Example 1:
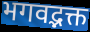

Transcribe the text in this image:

भगवद्भक्त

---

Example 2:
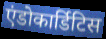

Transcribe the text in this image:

एंडोकार्डिटिस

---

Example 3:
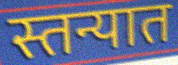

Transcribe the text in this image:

स्तन्यात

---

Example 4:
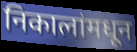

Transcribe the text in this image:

निकालांमधून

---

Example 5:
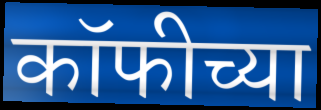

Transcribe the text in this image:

कॉफीच्या